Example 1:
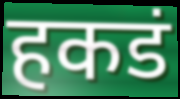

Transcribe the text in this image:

हकडं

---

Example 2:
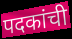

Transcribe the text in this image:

पदकांची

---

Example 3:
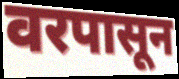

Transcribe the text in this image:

वरपासून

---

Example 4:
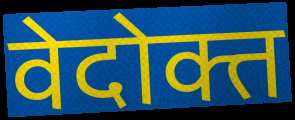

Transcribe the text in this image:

वेदोक्त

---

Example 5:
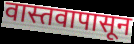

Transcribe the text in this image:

वास्तवापासून